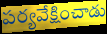
పర్యవేక్షించాడు